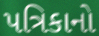
પત્રિકાનો